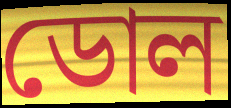
ডোল